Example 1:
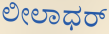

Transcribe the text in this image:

ಲೀಲಾಧರ್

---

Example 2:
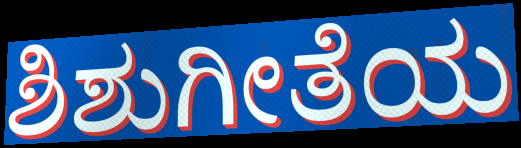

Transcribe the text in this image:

ಶಿಶುಗೀತೆಯ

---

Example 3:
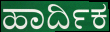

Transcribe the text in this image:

ಹಾರ್ದಿಕ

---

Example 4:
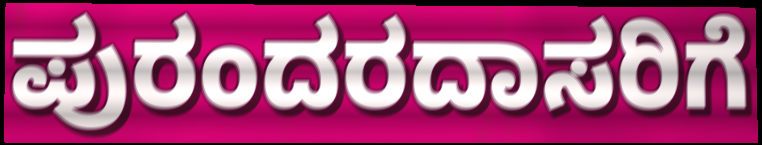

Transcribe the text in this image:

ಪುರಂದರದಾಸರಿಗೆ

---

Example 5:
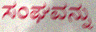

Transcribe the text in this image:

ಸಂಘವನ್ನು